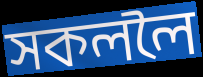
সকললৈ